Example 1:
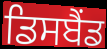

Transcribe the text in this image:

ਡਿਸਬੈਂਡ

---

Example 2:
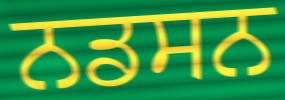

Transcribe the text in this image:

ਨਡਸਨ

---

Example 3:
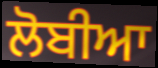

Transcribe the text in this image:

ਲੋਬੀਆ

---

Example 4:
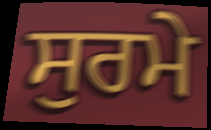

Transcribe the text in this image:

ਸੁਰਮੇ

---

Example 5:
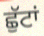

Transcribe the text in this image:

ਛੁੱਟਾਂ